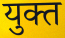
युक्त